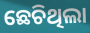
ଛେଚିଥିଲା